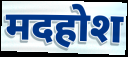
मदहोश